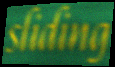
sliding